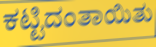
ಕಟ್ಟಿದಂತಾಯಿತು